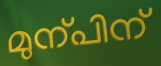
മുന്പിന്